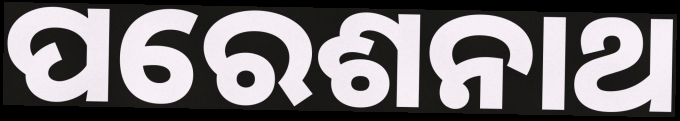
ପରେଶନାଥ